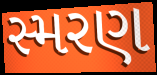
સ્‍મરણ